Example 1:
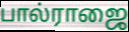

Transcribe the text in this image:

பால்ராஜை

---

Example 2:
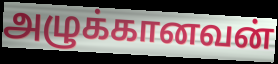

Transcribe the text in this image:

அழுக்கானவன்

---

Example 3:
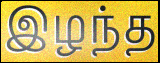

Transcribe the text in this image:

இழந்த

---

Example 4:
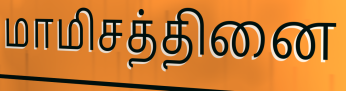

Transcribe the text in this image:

மாமிசத்தினை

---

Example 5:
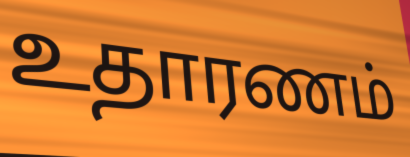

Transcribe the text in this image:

உதாரணம்